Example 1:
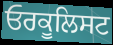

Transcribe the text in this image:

ਓਰਕੂਲਿਸਟ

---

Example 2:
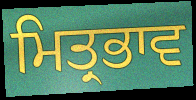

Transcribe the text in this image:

ਮਿਤ੍ਰਭਾਵ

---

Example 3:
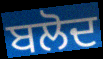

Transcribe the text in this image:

ਬਲੋਦ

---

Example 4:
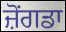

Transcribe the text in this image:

ਜ਼ੋਂਗਡਾ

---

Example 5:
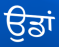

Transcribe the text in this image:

ਉਡਾਂ